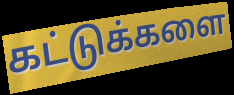
கட்டுக்களை